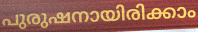
പുരുഷനായിരിക്കാം